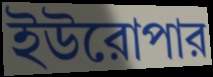
ইউরোপার